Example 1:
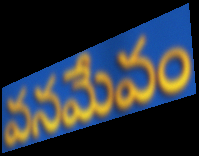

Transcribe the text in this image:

వనమేవం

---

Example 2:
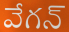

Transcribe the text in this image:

వేగన్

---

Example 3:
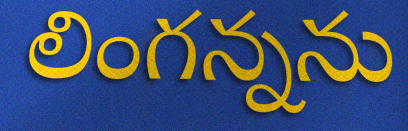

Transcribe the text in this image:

లింగన్నను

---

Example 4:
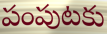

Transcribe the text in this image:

పంపుటకు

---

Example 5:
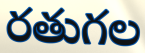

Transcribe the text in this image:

రతుగల